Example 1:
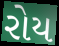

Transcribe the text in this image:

રોય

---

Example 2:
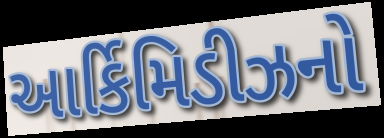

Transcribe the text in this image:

આર્કિમિડીઝનો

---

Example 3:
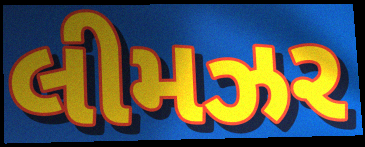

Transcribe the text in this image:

લીમઝર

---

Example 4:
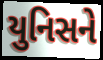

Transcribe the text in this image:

યુનિસને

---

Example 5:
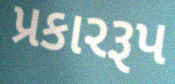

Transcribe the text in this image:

પ્રકારરૂપ